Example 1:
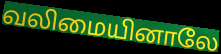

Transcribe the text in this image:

வலிமையினாலே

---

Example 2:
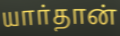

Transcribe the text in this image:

யார்தான்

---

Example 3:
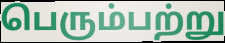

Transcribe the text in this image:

பெரும்பற்று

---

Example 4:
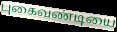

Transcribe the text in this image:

புகைவண்டியை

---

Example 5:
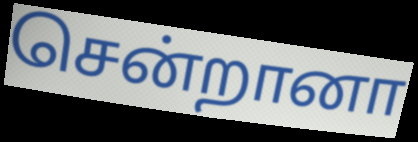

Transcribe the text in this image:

சென்றானா